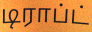
டிராப்ட்